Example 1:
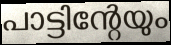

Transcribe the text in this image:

പാട്ടിന്റേയും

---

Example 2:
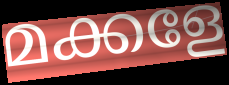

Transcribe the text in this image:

മക്കളേ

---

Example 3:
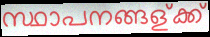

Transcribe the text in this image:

സ്ഥാപനങ്ങള്ക്ക്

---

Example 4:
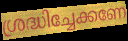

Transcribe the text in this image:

ശ്രദ്ധിച്ചേക്കണേ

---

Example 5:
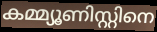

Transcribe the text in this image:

കമ്മ്യൂണിസ്റ്റിനെ